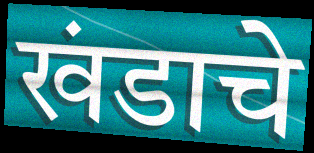
खंडाचे